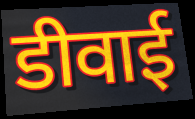
डीवाई